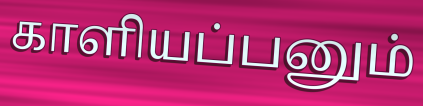
காளியப்பனும்